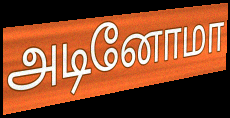
அடினோமா